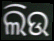
ଲିଉ